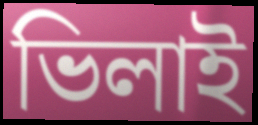
ভিলাই